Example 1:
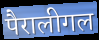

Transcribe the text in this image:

पैरालीगल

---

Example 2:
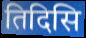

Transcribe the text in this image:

तिदिसि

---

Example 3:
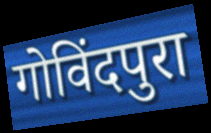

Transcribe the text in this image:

गोविंदपुरा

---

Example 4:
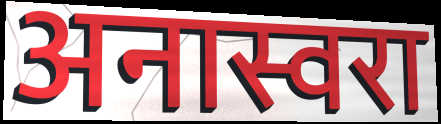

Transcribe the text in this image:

अनास्वरा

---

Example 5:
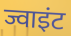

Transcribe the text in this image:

ज्वाइंट